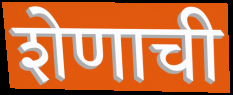
शेणाची